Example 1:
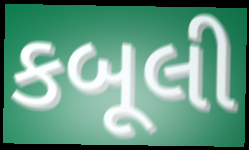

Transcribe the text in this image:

કબૂલી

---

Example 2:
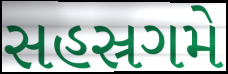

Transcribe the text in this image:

સહસ્રગમે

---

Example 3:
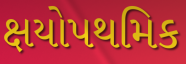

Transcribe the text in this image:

ક્ષયોપથમિક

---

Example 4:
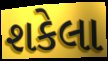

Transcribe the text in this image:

શકેલા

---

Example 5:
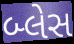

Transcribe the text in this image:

બ્લેસ